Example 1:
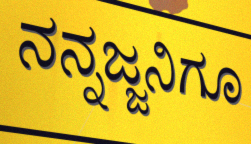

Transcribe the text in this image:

ನನ್ನಜ್ಜನಿಗೂ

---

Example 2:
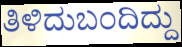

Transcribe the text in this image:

ತಿಳಿದುಬಂದಿದ್ದು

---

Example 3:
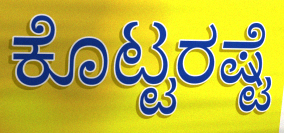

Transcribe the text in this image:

ಕೊಟ್ಟರಷ್ಟೆ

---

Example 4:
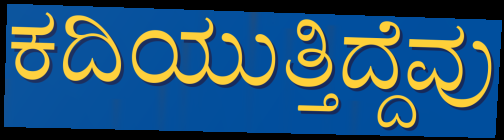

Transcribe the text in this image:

ಕದಿಯುತ್ತಿದ್ದೆವು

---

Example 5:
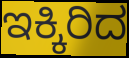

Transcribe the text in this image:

ಇಕ್ಕಿರಿದ